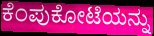
ಕೆಂಪುಕೋಟೆಯನ್ನು